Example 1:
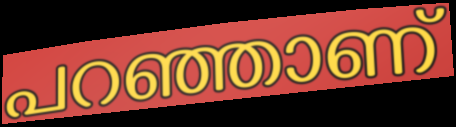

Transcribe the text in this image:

പറഞ്ഞാണ്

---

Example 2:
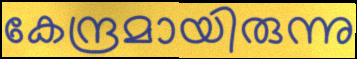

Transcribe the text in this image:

കേന്ദ്രമായിരുന്നു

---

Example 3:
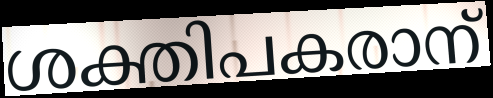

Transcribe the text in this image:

ശക്തിപകരാന്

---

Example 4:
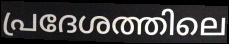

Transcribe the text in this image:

പ്രദേശത്തിലെ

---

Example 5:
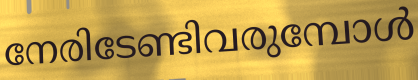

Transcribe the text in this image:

നേരിടേണ്ടിവരുമ്പോൾ